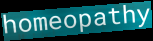
homeopathy